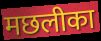
मछलीका